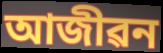
আজীৱন